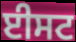
ਈਸਟ